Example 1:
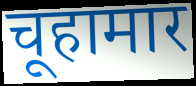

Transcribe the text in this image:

चूहामार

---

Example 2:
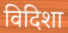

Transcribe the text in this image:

विदिशा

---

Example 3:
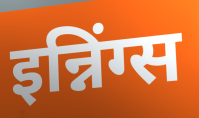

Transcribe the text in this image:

इन्निंग्स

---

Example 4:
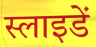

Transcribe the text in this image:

स्लाइडें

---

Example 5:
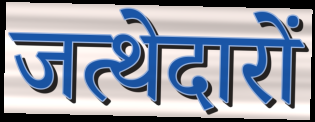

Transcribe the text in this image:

जत्थेदारों